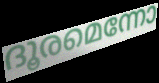
ദൂരമെന്നോ